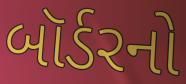
બૉર્ડરનો